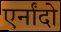
एर्नांदो